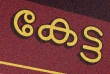
കേട്ട